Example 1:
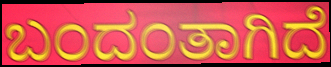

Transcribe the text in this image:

ಬಂದಂತಾಗಿದೆ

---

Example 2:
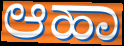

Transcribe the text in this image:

ಆಹಾ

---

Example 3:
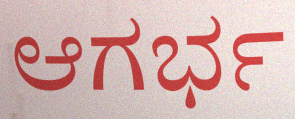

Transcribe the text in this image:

ಆಗರ್ಭ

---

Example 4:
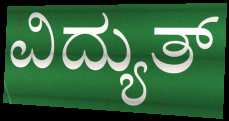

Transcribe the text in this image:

ವಿದ್ಯುತ್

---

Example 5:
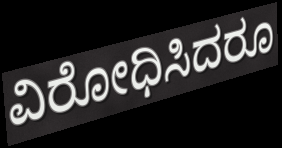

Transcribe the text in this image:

ವಿರೋಧಿಸಿದರೂ